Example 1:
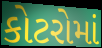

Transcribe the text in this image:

કોટરોમાં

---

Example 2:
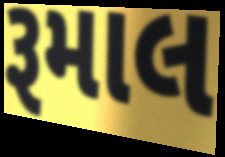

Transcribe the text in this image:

રૂમાલ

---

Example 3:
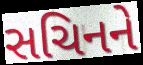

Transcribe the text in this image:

સચિનને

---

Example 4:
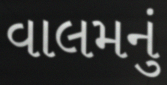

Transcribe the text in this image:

વાલમનું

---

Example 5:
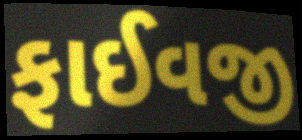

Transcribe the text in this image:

ફાઈવજી